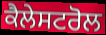
ਕੈਲੇਸਟਰੋਲ